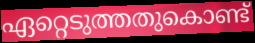
ഏറ്റെടുത്തതുകൊണ്ട്